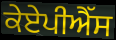
ਕੇਏਪੀਐੱਸ